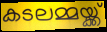
കടലമ്മയ്ക്ക്